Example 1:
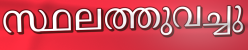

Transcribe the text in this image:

സ്ഥലത്തുവച്ചു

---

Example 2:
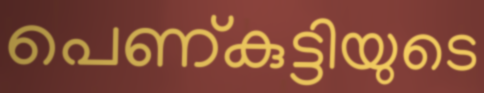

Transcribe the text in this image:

പെണ്കുട്ടിയുടെ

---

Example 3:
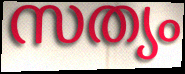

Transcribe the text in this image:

സത്യം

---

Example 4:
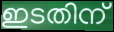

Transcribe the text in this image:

ഇടതിന്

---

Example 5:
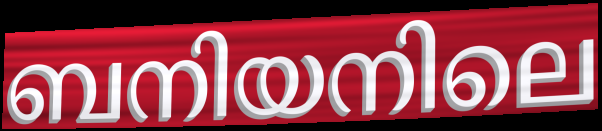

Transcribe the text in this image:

ബനിയനിലെ